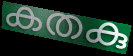
കതകു